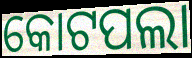
କୋଟପଲା